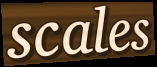
scales